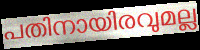
പതിനായിരവുമല്ല